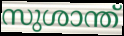
സുശാന്ത്